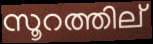
സൂറത്തില്